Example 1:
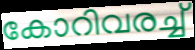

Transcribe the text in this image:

കോറിവരച്ച്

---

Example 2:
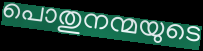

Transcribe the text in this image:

പൊതുനന്മയുടെ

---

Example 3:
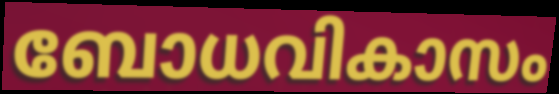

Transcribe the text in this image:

ബോധവികാസം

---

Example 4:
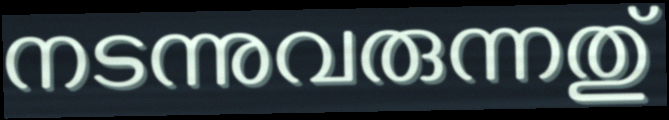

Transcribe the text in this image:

നടന്നുവരുന്നതു്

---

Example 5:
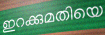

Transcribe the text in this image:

ഇറക്കുമതിയെ